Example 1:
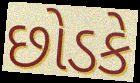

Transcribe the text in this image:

છોડકે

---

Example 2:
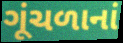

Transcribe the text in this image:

ગૂંચળાનાં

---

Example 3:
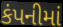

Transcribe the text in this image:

કંપનીમાં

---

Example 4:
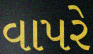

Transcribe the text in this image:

વાપરે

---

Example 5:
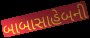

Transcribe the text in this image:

બાબાસાહેબની